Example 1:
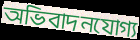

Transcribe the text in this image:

অভিবাদনযোগ্য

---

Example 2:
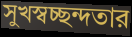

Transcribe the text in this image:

সুখস্বচ্ছন্দতার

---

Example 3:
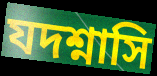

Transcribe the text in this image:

যদশ্নাসি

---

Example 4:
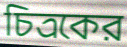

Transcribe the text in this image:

চিত্রকের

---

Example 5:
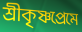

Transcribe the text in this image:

শ্রীকৃষ্ণপ্রেমে